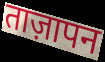
ताज़ापन